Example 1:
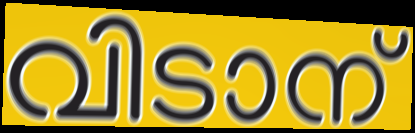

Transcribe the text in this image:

വിടാന്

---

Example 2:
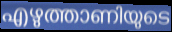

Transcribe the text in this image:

എഴുത്താണിയുടെ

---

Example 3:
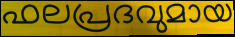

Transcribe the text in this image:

ഫലപ്രദവുമായ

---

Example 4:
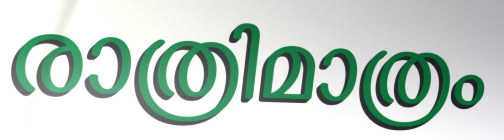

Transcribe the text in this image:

രാത്രിമാത്രം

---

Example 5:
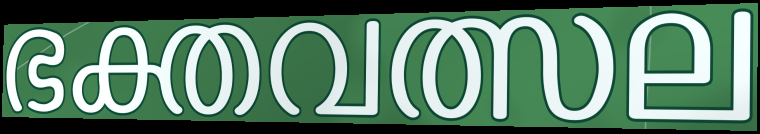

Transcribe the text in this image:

ഭക്തവത്സല